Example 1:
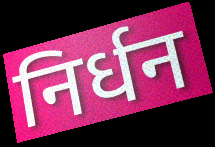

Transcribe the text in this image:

निर्धन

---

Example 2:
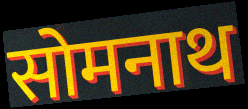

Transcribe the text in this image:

सोमनाथ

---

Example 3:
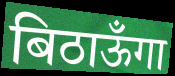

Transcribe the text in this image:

बिठाऊँगा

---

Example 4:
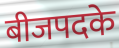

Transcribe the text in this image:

बीजपदके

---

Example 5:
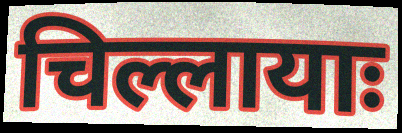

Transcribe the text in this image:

चिल्लायाः